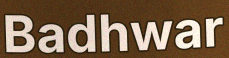
Badhwar